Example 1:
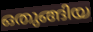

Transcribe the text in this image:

ഒതുങ്ങിയ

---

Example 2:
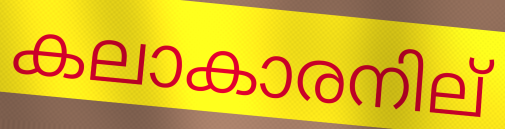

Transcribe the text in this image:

കലാകാരനില്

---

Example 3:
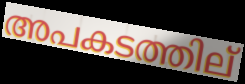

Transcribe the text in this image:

അപകടത്തില്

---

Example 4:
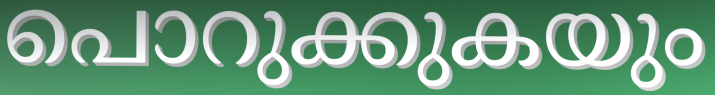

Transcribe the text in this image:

പൊറുക്കുകയും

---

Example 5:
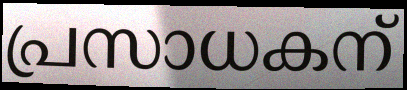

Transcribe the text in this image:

പ്രസാധകന്